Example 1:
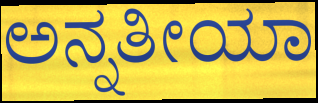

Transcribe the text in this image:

ಅನ್ನತೀಯಾ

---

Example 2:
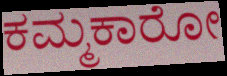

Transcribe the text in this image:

ಕಮ್ಮಕಾರೋ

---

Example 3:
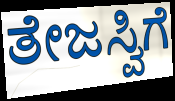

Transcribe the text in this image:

ತೇಜಸ್ವಿಗೆ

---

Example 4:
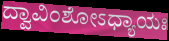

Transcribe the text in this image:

ದ್ವಾವಿಂಶೋಽಧ್ಯಾಯಃ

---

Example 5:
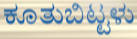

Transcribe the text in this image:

ಕೂತುಬಿಟ್ಟಳು